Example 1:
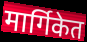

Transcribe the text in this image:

मार्गिकेत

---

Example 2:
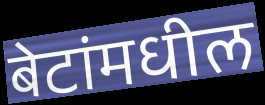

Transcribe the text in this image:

बेटांमधील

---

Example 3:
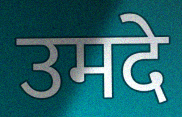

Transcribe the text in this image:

उमदे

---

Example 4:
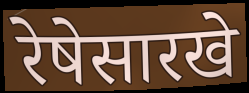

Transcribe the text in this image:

रेषेसारखे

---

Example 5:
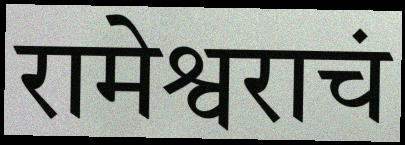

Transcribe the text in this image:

रामेश्वराचं